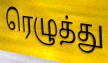
ரெழுத்து